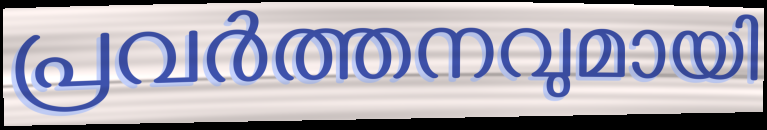
പ്രവർത്തനവുമായി